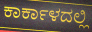
ಕಾರ್ಕಾಳದಲ್ಲಿ